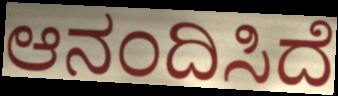
ಆನಂದಿಸಿದೆ